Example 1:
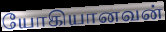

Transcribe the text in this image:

யோகியானவன்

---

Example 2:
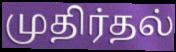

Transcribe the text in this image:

முதிர்தல்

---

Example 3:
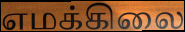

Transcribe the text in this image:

எமக்கிலை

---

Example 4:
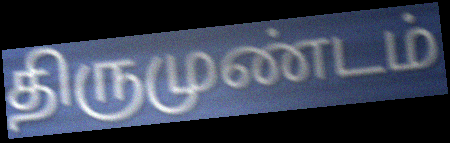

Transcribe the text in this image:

திருமுண்டம்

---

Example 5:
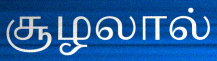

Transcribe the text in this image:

சூழலால்